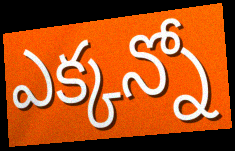
ఎక్కన్నో